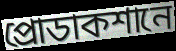
প্রোডাকশানে